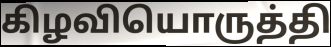
கிழவியொருத்தி